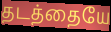
தடத்தையே